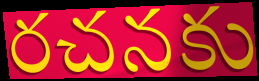
రచనకు